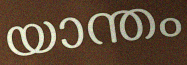
യാന്തം